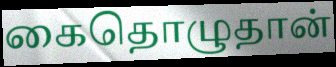
கைதொழுதான்